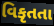
વિકૃતતા